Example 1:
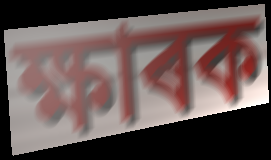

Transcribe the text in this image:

ক্ষাৰক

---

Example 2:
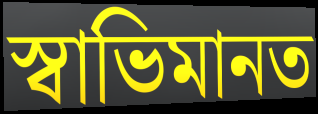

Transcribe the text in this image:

স্বাভিমানত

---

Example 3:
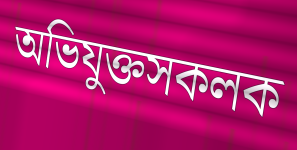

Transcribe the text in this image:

অভিযুক্তসকলক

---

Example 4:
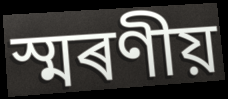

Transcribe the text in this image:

স্মৰণীয়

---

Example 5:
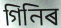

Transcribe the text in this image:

গিনিৰ